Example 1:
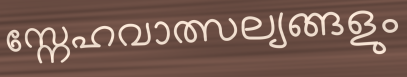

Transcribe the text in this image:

സ്നേഹവാത്സല്യങ്ങളും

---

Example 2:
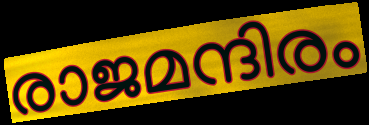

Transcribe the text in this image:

രാജമന്ദിരം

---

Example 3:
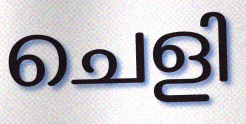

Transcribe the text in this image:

ചെളി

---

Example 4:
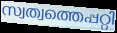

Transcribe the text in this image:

സ്വത്വത്തെപ്പറ്റി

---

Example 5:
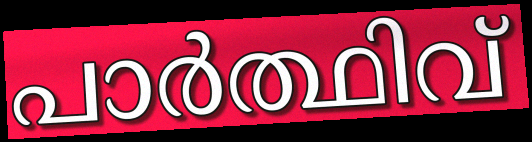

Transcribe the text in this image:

പാർത്ഥിവ്